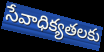
సేవాధిక్యతలకు